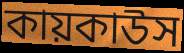
কায়কাউস